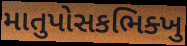
માતુપોસકભિક્ખુ